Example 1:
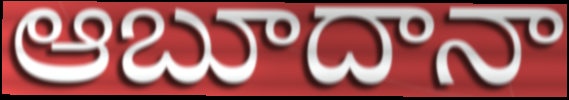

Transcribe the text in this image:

ఆబూదానా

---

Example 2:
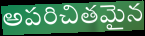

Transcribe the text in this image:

అపరిచితమైన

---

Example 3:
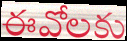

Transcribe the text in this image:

ఈవోలకు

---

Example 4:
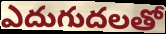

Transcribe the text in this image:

ఎదుగుదలతో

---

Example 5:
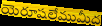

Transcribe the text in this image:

యెరూషలేముమీద